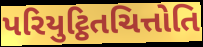
પરિયુટ્ઠિતચિત્તોતિ